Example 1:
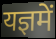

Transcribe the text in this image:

यज्ञमें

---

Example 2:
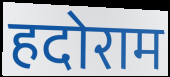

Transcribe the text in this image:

हदोराम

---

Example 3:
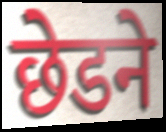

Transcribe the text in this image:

छेडने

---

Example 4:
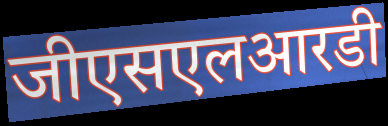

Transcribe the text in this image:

जीएसएलआरडी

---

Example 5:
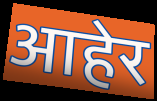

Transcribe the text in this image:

आहेर